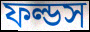
ফল্ডস